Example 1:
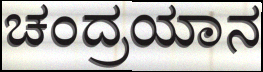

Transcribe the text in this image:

ಚಂದ್ರಯಾನ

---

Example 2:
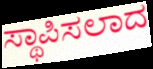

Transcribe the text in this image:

ಸ್ಥಾಪಿಸಲಾದ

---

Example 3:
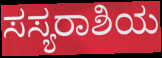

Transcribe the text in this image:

ಸಸ್ಯರಾಶಿಯ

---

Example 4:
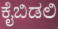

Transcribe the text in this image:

ಕೈಬಿಡಲಿ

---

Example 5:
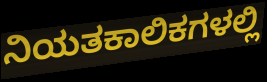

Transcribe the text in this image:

ನಿಯತಕಾಲಿಕಗಳಲ್ಲಿ